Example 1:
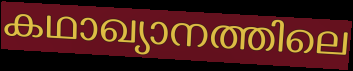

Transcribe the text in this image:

കഥാഖ്യാനത്തിലെ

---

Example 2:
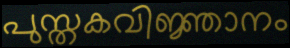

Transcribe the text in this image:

പുസ്തകവിജ്ഞാനം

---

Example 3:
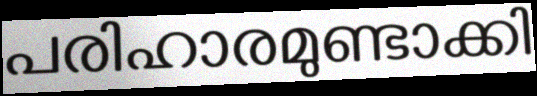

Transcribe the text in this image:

പരിഹാരമുണ്ടാക്കി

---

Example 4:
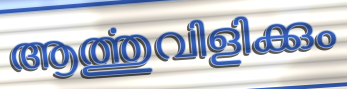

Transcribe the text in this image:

ആൎത്തുവിളിക്കും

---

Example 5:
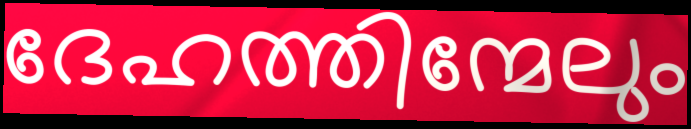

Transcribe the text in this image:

ദേഹത്തിന്മേലും